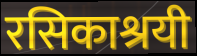
रसिकाश्रयी